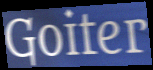
Goiter